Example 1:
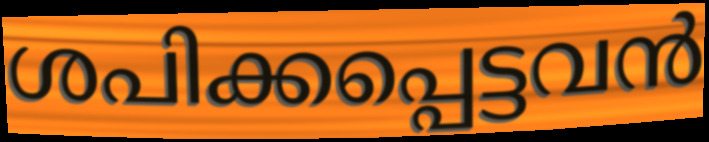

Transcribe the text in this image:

ശപിക്കപ്പെട്ടവൻ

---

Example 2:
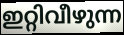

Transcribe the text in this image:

ഇറ്റിവീഴുന്ന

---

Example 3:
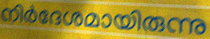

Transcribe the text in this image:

നിർദേശമായിരുന്നു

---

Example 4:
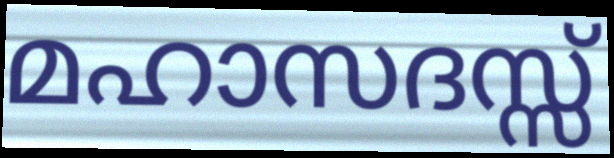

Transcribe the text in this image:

മഹാസദസ്സ്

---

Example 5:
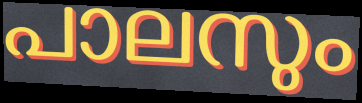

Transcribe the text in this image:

പാലസും